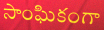
సాంఘికంగా